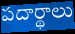
పదార్థాలు